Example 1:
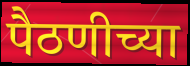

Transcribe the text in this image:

पैठणीच्या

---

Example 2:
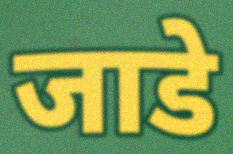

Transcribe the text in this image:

जाडे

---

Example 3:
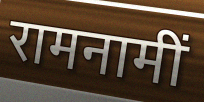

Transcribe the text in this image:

रामनामीं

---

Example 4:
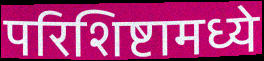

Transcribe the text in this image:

परिशिष्टामध्ये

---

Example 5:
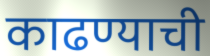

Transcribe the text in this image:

काढण्याची